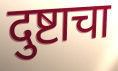
दुष्टाचा